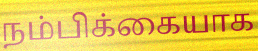
நம்பிக்கையாக